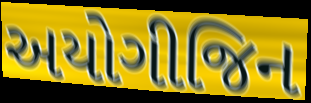
અયોગીજિન